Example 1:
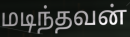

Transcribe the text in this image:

மடிந்தவன்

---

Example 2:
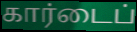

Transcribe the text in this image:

கார்டைப்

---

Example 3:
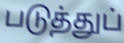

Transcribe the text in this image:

படுத்துப்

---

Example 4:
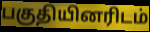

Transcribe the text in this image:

பகுதியினரிடம்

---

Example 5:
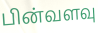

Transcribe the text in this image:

பின்வளவு